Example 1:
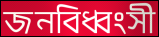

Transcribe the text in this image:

জনবিধ্বংসী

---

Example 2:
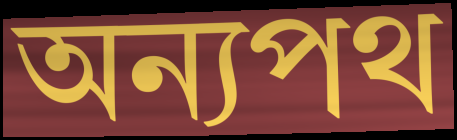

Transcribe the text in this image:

অন্যপথ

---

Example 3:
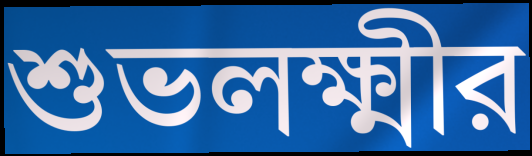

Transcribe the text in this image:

শুভলক্ষ্মীর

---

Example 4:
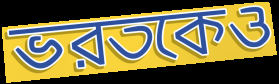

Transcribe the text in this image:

ভরতকেও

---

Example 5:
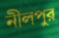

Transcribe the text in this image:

নীলপুর